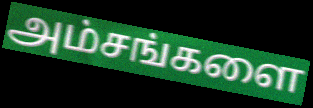
அம்சங்களை